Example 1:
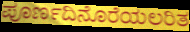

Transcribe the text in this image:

ಪೂರ್ಣದಿನೊರೆಯಲರಿತ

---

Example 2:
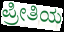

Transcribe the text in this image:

ಪ್ರೀತಿಯ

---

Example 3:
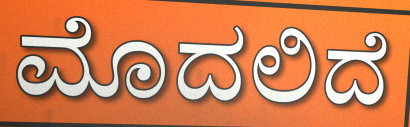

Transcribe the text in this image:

ಮೊದಲಿದೆ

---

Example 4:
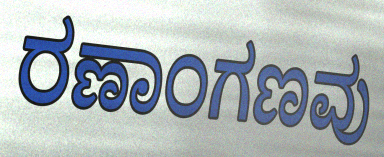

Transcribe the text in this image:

ರಣಾಂಗಣವು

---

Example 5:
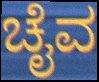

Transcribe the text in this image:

ಚೈವ